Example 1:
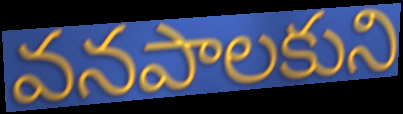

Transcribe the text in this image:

వనపాలకుని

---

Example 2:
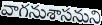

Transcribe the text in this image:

వాగనుశాసనుని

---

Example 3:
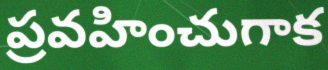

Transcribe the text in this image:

ప్రవహించుగాక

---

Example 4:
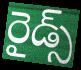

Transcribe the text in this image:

రైడ్స్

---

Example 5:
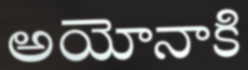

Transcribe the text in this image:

అయోనాకి